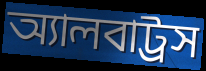
অ্যালবাট্রস